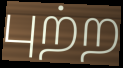
புற்ற